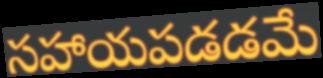
సహాయపడడమే